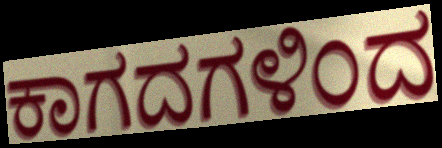
ಕಾಗದಗಳಿಂದ